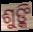
ଶୁଙ୍କି